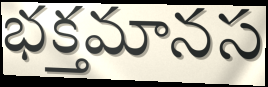
భక్తమానస